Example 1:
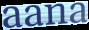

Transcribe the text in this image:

aana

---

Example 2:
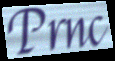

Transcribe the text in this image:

Prnc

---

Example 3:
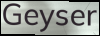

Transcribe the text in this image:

Geyser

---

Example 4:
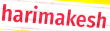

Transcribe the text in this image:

harimakesh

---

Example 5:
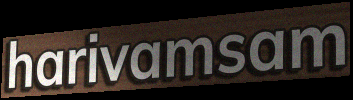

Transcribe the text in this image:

harivamsam